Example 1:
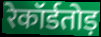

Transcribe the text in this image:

रेकॉर्डतोड़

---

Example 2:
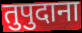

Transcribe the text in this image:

तुपुदाना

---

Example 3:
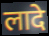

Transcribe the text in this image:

लादे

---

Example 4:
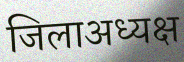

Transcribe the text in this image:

जिलाअध्यक्ष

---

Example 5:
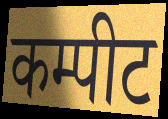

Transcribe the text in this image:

कम्पीट